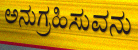
ಅನುಗ್ರಹಿಸುವನು